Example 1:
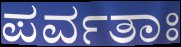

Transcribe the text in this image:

ಪರ್ವತಾಃ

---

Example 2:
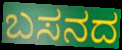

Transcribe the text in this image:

ಬಸನದ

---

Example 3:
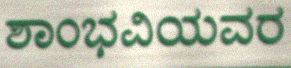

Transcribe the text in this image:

ಶಾಂಭವಿಯವರ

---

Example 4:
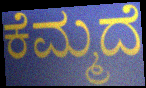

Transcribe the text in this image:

ಕೆಮ್ಮದೆ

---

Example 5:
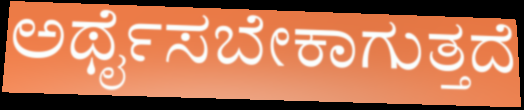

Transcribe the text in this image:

ಅರ್ಥೈಸಬೇಕಾಗುತ್ತದೆ